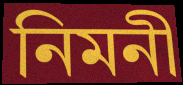
নিমনী